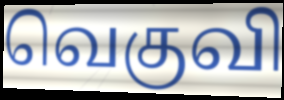
வெகுவி